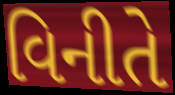
વિનીતે